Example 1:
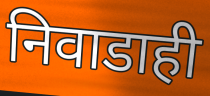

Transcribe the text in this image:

निवाडाही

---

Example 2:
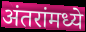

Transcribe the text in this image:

अंतरांमध्ये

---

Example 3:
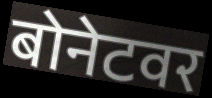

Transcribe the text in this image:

बोनेटवर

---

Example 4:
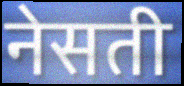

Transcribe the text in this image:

नेसती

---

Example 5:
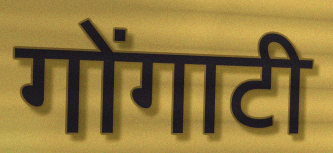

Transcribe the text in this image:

गोंगाटी